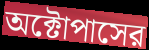
অক্টোপাসের